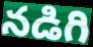
నడిగి